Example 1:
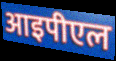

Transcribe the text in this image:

आइपीएल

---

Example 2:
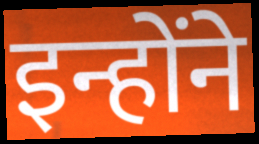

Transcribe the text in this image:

इन्होंने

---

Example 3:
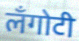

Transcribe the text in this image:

लँगोटी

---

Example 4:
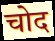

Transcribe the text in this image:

चोद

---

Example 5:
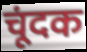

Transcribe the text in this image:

चूंदक